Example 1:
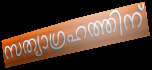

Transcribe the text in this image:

സത്യാഗ്രഹത്തിന്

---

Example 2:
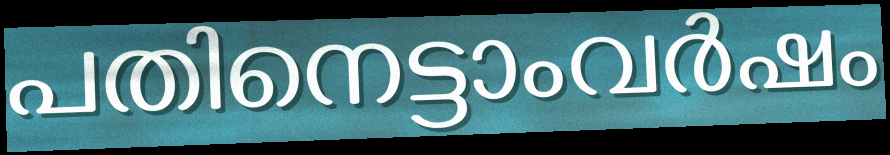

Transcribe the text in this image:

പതിനെട്ടാംവർഷം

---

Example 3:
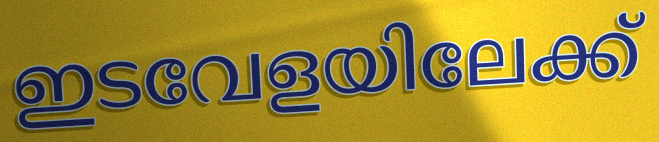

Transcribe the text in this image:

ഇടവേളയിലേക്ക്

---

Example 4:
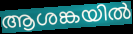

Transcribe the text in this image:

ആശങ്കയിൽ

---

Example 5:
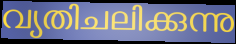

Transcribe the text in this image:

വ്യതിചലിക്കുന്നു